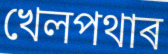
খেলপথাৰ